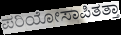
ಪರಿಯೋಸಾಪಿತತ್ತಾ